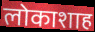
लोकाशाह